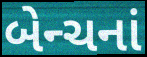
બેન્ચનાં